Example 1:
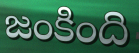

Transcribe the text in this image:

జంకింది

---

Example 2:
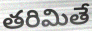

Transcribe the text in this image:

తరిమితే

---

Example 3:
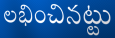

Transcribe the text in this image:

లభించినట్టు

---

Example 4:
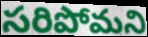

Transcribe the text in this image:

సరిపోమని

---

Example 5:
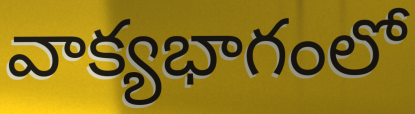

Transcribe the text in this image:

వాక్యభాగంలో